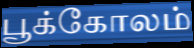
பூக்கோலம்